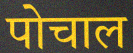
पोचाल